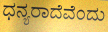
ಧನ್ಯರಾದೆವೆಂದು